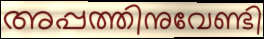
അപ്പത്തിനുവേണ്ടി